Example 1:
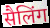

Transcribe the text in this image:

सैलिंग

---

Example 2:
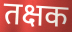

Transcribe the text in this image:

तक्षक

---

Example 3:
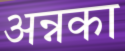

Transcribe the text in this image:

अन्नका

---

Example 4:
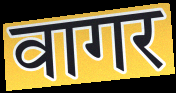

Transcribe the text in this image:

वागर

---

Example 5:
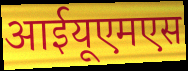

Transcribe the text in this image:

आईयूएमएस